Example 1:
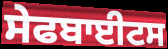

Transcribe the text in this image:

ਸੇਫਬਾਈਟਸ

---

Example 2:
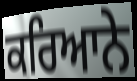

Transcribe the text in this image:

ਕਰਿਆਨੇ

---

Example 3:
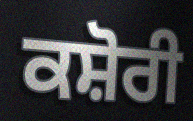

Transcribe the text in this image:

ਕਸ਼ੋਰੀ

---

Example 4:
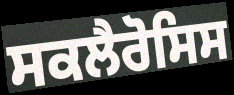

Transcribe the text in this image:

ਸਕਲੈਰੋਸਿਸ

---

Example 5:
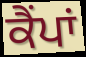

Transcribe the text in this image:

ਕੈੰਪਾਂ